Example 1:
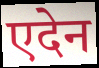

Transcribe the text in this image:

एदेन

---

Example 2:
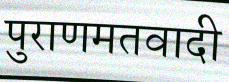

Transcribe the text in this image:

पुराणमतवादी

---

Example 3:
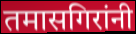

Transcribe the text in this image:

तमासगिरांनी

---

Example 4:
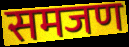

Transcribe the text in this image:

समजण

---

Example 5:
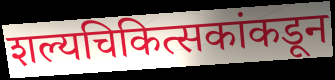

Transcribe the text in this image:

शल्यचिकित्सकांकडून